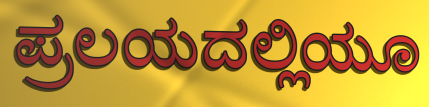
ಪ್ರಲಯದಲ್ಲಿಯೂ